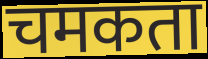
चमकता